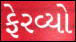
ફેરવ્યો